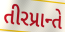
તીરપ્રાન્તે